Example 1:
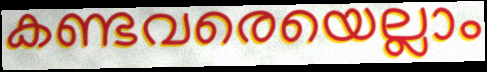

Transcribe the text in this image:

കണ്ടവരെയെല്ലാം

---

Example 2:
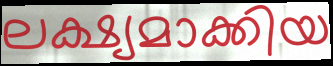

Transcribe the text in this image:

ലക്ഷ്യമാക്കിയ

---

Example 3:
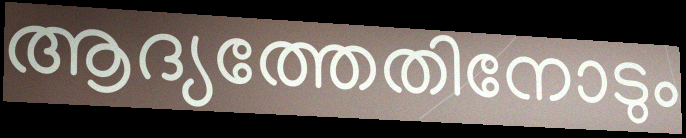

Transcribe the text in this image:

ആദ്യത്തേതിനോടും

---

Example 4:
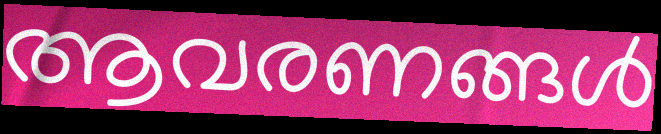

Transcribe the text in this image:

ആവരണങ്ങൾ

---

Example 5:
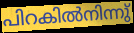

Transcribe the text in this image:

പിറകിൽനിന്നു്